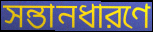
সন্তানধারণে